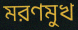
মরণমুখ